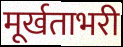
मूर्खताभरी